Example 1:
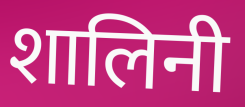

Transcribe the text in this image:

शालिनी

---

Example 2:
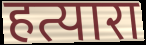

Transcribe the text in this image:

हत्यारा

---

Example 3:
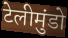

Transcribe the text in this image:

टेलीमुंडो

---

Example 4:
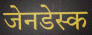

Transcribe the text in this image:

जेनडेस्क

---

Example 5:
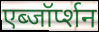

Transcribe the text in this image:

एब्जॉर्प्शन